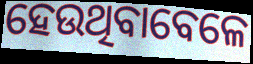
ହେଉଥିବାବେଳେ